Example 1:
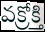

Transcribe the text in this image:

వక్రోక్తి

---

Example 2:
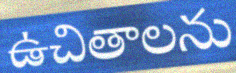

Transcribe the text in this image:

ఉచితాలను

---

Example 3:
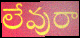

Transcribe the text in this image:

లేవురా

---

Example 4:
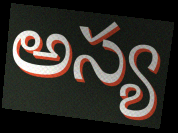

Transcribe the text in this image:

అస్య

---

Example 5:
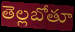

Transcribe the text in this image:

తెల్లబోతూ